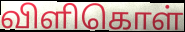
விளிகொள்